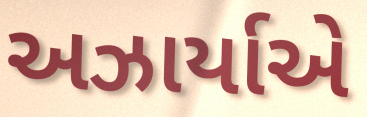
અઝાર્યાએ